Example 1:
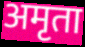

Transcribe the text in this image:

अमृता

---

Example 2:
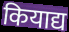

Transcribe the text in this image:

कियाद्य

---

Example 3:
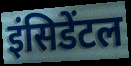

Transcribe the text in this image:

इंसिडेंटल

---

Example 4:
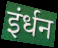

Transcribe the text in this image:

इंर्धन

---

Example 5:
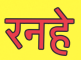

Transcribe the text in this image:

रनहे